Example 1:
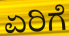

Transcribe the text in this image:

ಏರಿಗೆ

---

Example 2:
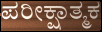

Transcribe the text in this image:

ಪರೀಕ್ಷಾತ್ಮಕ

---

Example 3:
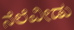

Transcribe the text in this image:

ನೆಲೆವೀಡು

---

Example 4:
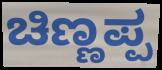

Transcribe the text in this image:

ಚಿಣ್ಣಪ್ಪ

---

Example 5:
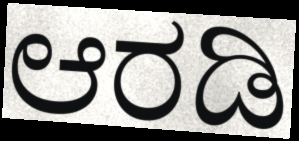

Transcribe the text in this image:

ಆರಡಿ